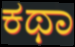
ಕಥಾ